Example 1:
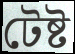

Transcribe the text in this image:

টেষ্ট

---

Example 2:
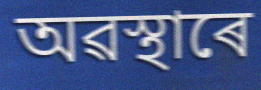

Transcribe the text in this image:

অৱস্থাৰে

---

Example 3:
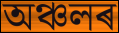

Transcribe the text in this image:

অঞ্চলৰ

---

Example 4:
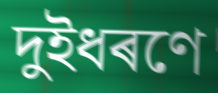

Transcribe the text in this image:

দুইধৰণে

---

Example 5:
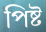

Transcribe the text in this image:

পিষ্ট